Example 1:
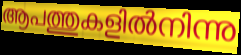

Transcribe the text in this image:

ആപത്തുകളിൽനിന്നു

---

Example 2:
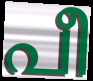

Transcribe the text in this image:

പീ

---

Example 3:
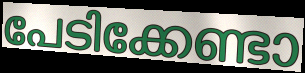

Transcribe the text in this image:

പേടിക്കേണ്ടാ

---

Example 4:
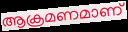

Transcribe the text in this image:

ആക്രമണമാണ്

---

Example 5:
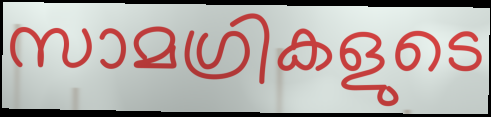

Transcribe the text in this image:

സാമഗ്രികളുടെ